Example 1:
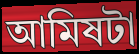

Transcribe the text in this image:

আমিষটা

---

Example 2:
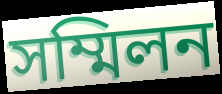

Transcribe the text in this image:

সম্মিলন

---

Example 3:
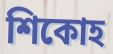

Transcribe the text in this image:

শিকোহ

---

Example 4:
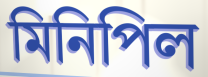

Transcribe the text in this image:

মিনিপিল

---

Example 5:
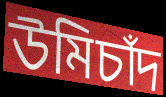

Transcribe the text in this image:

উমিচাঁদ